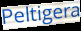
Peltigera